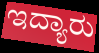
ಇದ್ಯಾರು